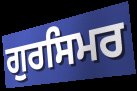
ਗੁਰਸਿਮਰ